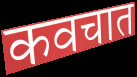
कवचात